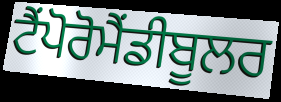
ਟੈਂਪੋਰੋਮੈਂਡੀਬੂਲਰ